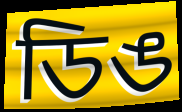
ডিঙ